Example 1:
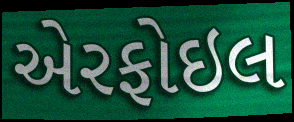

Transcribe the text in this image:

એરફોઇલ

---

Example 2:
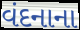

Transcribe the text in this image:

વંદનાના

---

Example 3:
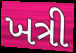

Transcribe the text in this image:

ખત્રી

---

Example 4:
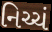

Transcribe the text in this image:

નિચ્ચં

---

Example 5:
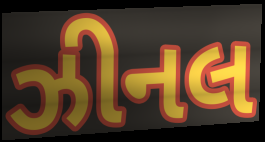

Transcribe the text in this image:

ઝીનલ